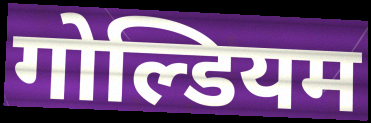
गोल्डियम